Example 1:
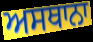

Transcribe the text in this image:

ਅਸਥਾਨਾ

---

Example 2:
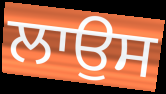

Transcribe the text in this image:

ਲਾਉਸ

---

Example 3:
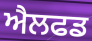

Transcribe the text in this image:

ਐਲਫਡ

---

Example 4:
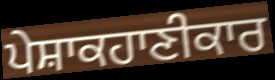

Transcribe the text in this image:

ਪੇਸ਼ਾਕਹਾਣੀਕਾਰ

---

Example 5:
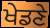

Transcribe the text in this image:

ਖੇਡਣੇ